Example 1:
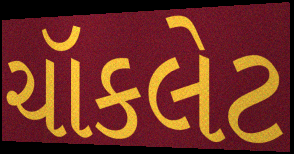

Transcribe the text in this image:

ચૉકલેટ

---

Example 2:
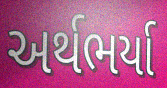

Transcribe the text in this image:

અર્થભર્યા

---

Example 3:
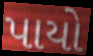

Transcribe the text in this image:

પાયો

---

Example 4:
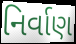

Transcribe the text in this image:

નિર્વાણ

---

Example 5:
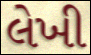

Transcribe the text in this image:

લેખી